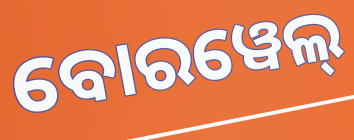
ବୋରୱେଲ୍